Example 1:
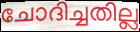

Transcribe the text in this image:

ചോദിച്ചതില്ല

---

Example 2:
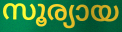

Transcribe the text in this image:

സൂര്യായ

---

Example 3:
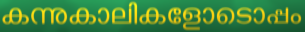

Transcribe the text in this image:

കന്നുകാലികളോടൊപ്പം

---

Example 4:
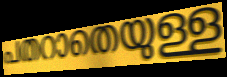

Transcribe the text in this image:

പതറാതെയുള്ള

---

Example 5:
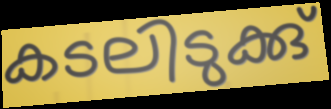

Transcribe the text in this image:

കടലിടുക്കു്